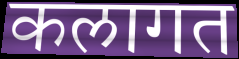
कलागत